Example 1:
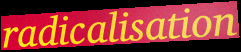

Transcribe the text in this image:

radicalisation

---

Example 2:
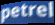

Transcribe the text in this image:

petrel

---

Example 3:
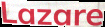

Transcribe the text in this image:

Lazare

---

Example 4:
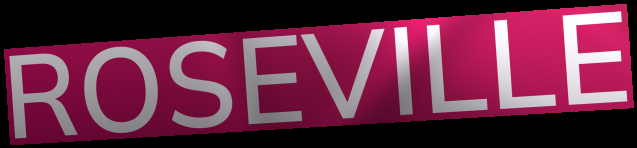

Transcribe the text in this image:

ROSEVILLE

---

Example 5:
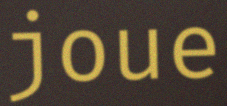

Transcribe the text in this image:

joue